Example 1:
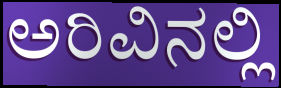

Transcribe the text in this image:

ಅರಿವಿನಲ್ಲಿ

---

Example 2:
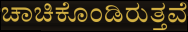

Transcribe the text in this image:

ಚಾಚಿಕೊಂಡಿರುತ್ತವೆ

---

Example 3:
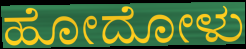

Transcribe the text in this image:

ಹೋದೋಳು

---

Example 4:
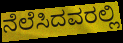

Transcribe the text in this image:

ನೆಲೆಸಿದವರಲ್ಲಿ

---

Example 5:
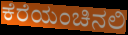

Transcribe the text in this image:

ಕೆರೆಯಂಚಿನಲಿ